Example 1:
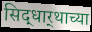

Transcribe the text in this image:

सिद्धार्थाच्या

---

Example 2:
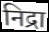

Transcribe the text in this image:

निद्रा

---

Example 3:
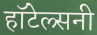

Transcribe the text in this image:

हॉटेल्सनी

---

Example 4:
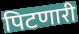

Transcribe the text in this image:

पिटणारी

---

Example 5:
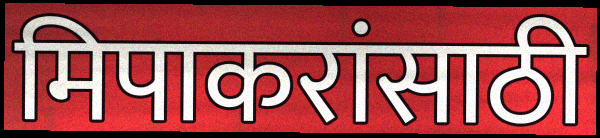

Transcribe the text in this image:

मिपाकरांसाठी